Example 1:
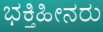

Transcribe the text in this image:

ಭಕ್ತಿಹೀನರು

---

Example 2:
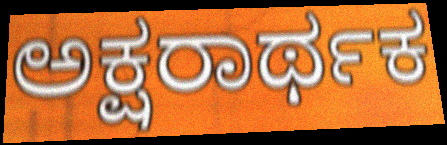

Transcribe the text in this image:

ಅಕ್ಷರಾರ್ಥಕ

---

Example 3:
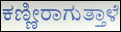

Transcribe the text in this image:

ಕಣ್ಣೀರಾಗುತ್ತಾಳೆ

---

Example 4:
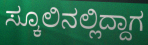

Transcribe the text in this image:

ಸ್ಕೂಲಿನಲ್ಲಿದ್ದಾಗ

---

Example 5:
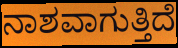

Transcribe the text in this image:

ನಾಶವಾಗುತ್ತಿದೆ